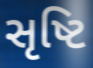
સૃષ્ટિ